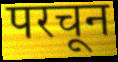
परचून